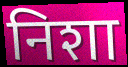
निशा